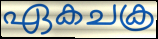
ഏകചക്ര